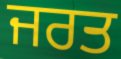
ਜਰਤ